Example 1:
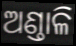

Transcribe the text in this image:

ଅଣ୍ଡାଳି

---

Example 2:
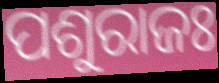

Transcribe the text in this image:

ପଶୁରାଜଃ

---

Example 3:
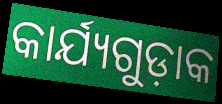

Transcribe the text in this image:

କାର୍ଯ୍ୟଗୁଡ଼ାକ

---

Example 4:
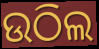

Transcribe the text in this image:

ଉଠିଲ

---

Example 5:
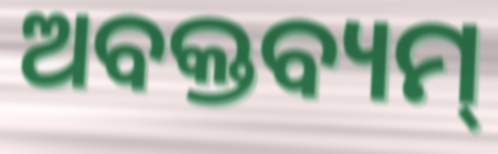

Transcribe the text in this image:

ଅବକ୍ତବ୍ୟମ୍